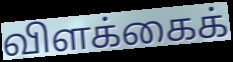
விளக்கைக்